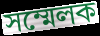
সম্মেলক